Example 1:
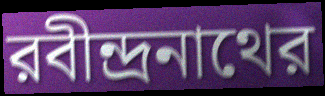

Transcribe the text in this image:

রবীন্দ্রনাথের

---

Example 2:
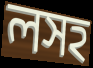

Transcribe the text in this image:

লসহ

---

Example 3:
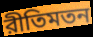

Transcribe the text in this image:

রীতিমতন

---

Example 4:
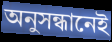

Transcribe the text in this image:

অনুসন্ধানেই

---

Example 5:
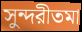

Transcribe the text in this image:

সুন্দরীতমা